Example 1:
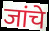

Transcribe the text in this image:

जांचे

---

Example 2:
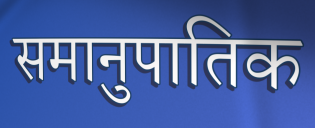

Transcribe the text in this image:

समानुपातिक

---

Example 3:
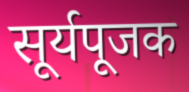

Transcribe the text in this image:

सूर्यपूजक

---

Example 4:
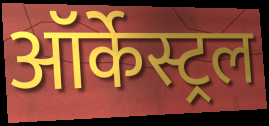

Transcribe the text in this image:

ऑर्केस्ट्रल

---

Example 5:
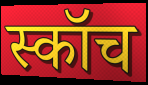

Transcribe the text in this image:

स्कॉच